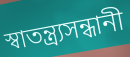
স্বাতন্ত্র্যসন্ধানী